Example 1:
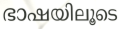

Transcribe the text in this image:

ഭാഷയിലൂടെ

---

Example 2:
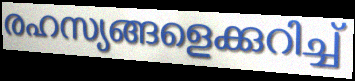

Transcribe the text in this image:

രഹസ്യങ്ങളെക്കുറിച്ച്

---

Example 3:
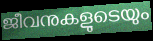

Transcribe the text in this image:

ജീവനുകളുടെയും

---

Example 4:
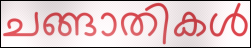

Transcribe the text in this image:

ചങ്ങാതികൾ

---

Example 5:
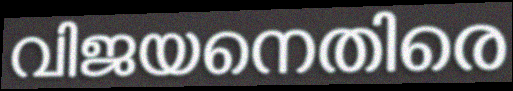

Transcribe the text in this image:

വിജയനെതിരെ